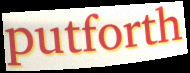
putforth